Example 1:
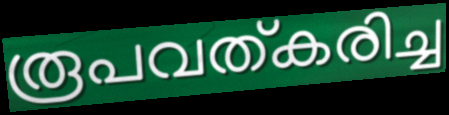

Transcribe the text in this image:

രൂപവത്കരിച്ച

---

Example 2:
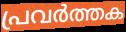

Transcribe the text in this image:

പ്രവർത്തക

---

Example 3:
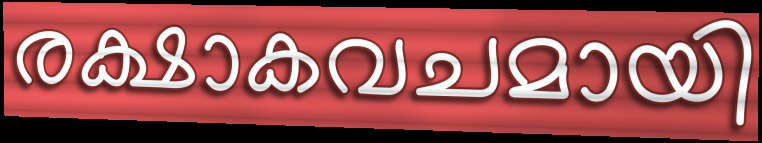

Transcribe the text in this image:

രക്ഷാകവചമായി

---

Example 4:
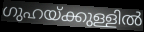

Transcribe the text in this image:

ഗുഹയ്ക്കുള്ളിൽ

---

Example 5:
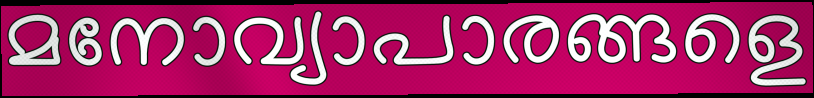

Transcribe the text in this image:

മനോവ്യാപാരങ്ങളെ